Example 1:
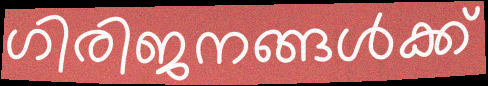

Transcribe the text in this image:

ഗിരിജനങ്ങൾക്ക്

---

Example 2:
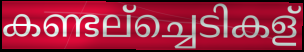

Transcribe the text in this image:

കണ്ടല്ച്ചെടികള്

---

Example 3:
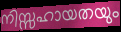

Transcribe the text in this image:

നിസ്സഹായതയും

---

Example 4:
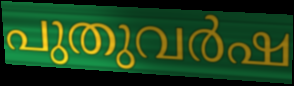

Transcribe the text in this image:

പുതുവർഷ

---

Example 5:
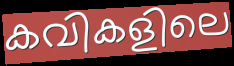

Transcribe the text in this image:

കവികളിലെ